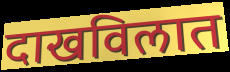
दाखविलात